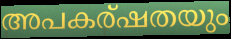
അപകര്ഷതയും